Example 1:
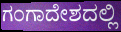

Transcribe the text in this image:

ಗಂಗಾದೇಶದಲ್ಲಿ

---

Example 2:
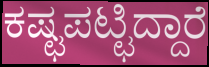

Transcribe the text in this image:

ಕಷ್ಟಪಟ್ಟಿದ್ದಾರೆ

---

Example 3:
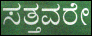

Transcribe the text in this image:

ಸತ್ತವರೇ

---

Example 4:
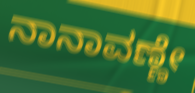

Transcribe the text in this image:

ನಾನಾವಣ್ಣೇ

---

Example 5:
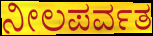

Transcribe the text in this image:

ನೀಲಪರ್ವತ